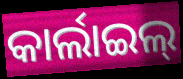
କାର୍ଲାଇଲ୍